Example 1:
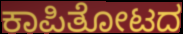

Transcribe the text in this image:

ಕಾಪಿತೋಟದ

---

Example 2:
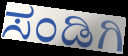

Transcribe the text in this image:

ಸಂಡಿಗಿ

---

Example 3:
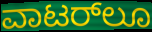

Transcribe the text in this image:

ವಾಟರ್‌ಲೂ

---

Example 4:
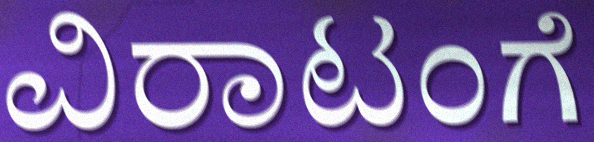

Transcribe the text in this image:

ವಿರಾಟಂಗೆ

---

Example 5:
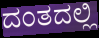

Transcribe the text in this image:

ದಂತದಲ್ಲಿ